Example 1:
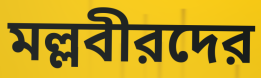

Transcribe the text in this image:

মল্লবীরদের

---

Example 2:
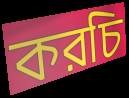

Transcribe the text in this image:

করচি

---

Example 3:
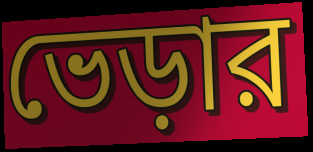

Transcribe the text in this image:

ভেড়ার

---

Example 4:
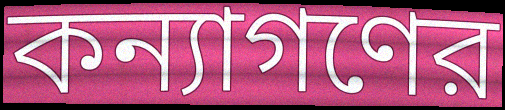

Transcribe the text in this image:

কন্যাগণের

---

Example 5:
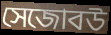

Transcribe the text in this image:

সেজোবউ